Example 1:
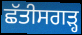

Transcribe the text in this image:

ਛੱਤੀਸਗੜ੍ਹ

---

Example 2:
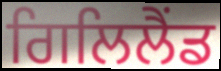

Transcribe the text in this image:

ਗਿਲਿਲੈਂਡ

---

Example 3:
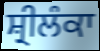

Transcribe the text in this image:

ਸ਼੍ਰੀਲੰਕਾ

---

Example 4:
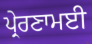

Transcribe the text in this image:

ਪ੍ਰੇਰਣਾਮਈ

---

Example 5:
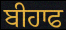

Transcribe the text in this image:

ਬੀਹਾਫ